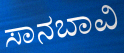
ಸಾನಬಾವಿ